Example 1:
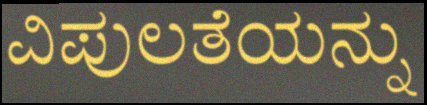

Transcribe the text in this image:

ವಿಪುಲತೆಯನ್ನು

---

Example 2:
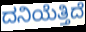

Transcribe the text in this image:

ದನಿಯೆತ್ತಿದೆ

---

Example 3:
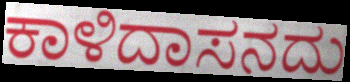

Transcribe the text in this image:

ಕಾಳಿದಾಸನದು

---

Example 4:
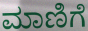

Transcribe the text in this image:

ಮಾಣಿಗೆ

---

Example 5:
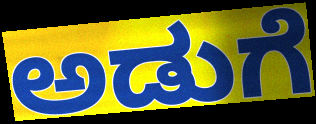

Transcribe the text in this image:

ಅಡುಗೆ